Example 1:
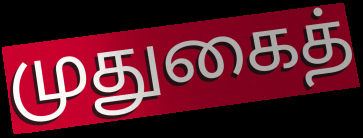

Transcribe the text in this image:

முதுகைத்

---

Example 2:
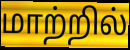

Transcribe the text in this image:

மாற்றில்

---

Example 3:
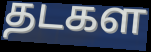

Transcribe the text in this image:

தடகள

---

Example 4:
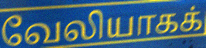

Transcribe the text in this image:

வேலியாகக்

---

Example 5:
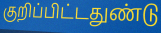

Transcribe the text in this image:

குறிப்பிட்டதுண்டு